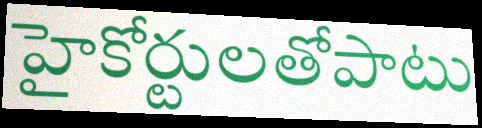
హైకోర్టులతోపాటు